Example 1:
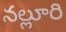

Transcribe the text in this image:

నల్లూరి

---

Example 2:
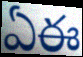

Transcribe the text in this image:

ఏఈ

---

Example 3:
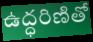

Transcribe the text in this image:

ఉద్ధరిణితో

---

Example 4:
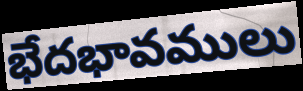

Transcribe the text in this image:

భేదభావములు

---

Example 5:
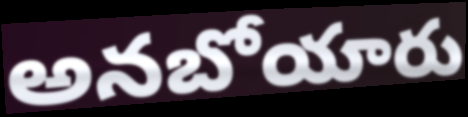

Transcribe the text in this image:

అనబోయారు